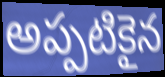
అప్పటికైన